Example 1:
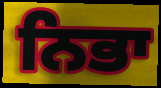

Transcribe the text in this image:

ਨਿਭਾ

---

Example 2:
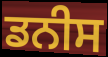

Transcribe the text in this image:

ਡਨੀਸ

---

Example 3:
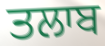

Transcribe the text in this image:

ਤਲਾਬ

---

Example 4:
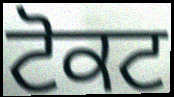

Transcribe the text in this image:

ਟੋਕਟ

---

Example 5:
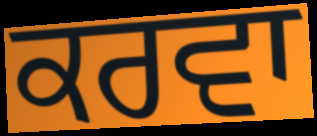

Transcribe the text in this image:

ਕਰਵਾ